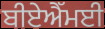
ਬੀਏਐੱਮਈ